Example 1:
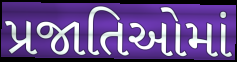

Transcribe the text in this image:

પ્રજાતિઓમાં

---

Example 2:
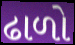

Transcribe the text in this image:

ઢાળો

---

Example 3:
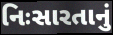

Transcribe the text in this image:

નિઃસારતાનું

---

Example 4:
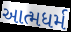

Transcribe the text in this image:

આત્મધર્મ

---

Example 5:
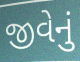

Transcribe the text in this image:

જીવેનું